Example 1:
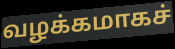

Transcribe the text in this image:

வழக்கமாகச்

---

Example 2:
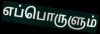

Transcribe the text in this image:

எப்பொருளும்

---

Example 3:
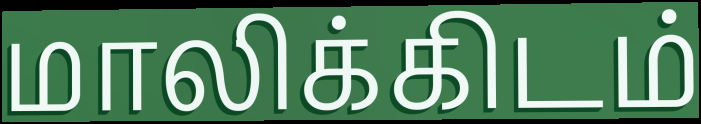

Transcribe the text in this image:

மாலிக்கிடம்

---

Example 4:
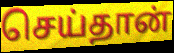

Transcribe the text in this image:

செய்தான்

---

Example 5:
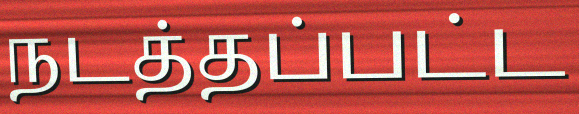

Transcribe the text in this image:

நடத்தப்பட்ட